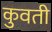
कुवती